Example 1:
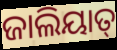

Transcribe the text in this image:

ଜାଲିୟାତ୍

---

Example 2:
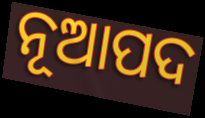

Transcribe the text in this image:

ନୂଆପଦ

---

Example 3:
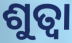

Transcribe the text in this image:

ଶୁତ୍ବା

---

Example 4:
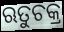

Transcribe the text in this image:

ଋତୁଚକ୍ର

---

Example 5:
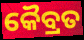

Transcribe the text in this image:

କୈବ୍ରତ